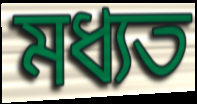
মধ্যত